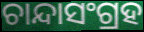
ଚାନ୍ଦାସଂଗ୍ରହ